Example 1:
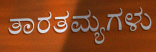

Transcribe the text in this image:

ತಾರತಮ್ಯಗಳು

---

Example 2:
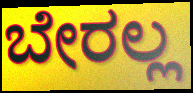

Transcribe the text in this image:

ಬೇರಲ್ಲ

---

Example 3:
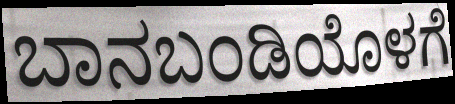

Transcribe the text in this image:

ಬಾನಬಂಡಿಯೊಳಗೆ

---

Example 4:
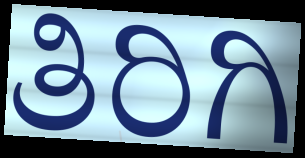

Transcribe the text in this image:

ತಿರಿಗಿ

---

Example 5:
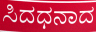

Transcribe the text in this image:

ಸಿದಧನಾದ